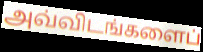
அவ்விடங்களைப்